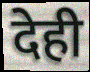
देही